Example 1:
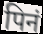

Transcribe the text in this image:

पिनं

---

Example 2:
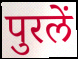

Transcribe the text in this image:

पुरलें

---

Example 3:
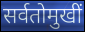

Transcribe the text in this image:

सर्वतोमुखीं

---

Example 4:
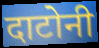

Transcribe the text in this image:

दाटोनी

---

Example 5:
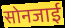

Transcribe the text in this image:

सोनजाई